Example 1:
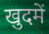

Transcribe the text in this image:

खुदमें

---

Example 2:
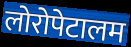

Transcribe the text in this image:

लोरोपेटालम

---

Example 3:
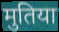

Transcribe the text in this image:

मुतिया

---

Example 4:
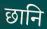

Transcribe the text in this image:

छानि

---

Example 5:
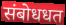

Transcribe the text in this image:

संबोधधत